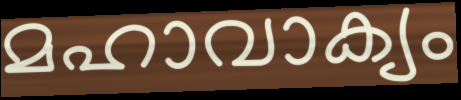
മഹാവാക്യം